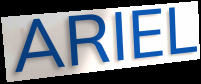
ARIEL